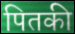
पितकी